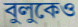
বুলুকেও